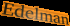
Edelman